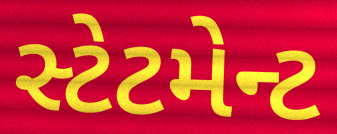
સ્ટેટમેન્ટ